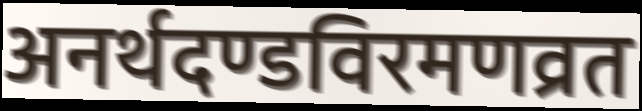
अनर्थदण्डविरमणव्रत